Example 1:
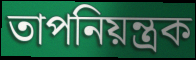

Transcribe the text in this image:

তাপনিয়ন্ত্রক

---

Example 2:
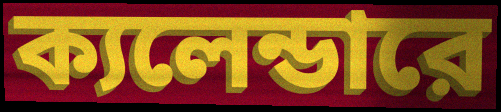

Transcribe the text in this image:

ক্যলেন্ডারে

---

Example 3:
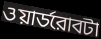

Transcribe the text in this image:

ওয়ার্ডরোবটা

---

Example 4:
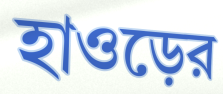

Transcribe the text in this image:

হাওড়ের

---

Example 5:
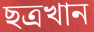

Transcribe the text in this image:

ছত্রখান